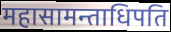
महासामन्ताधिपति